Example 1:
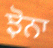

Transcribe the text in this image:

ਝੋਨਾ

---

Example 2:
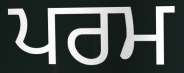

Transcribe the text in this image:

ਪਰਮ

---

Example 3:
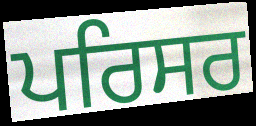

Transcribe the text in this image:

ਪਰਿਸਰ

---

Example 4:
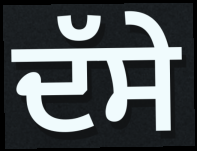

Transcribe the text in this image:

ਦੱਸੇ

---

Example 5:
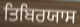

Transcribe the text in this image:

ਤਿਬਿਰਯਾਸ